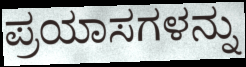
ಪ್ರಯಾಸಗಳನ್ನು